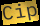
Cip